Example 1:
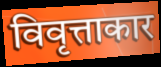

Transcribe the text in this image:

विवृत्ताकार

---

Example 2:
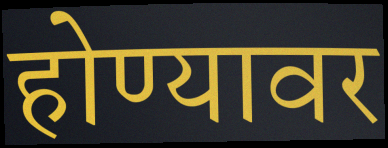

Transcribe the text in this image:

होण्यावर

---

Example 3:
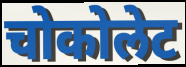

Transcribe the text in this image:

चोकोलेट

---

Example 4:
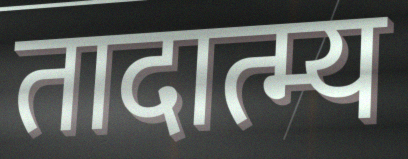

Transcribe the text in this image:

तादात्म्य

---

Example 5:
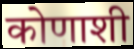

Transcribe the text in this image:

कोणाशी